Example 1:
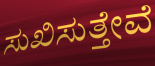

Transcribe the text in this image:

ಸುಖಿಸುತ್ತೇವೆ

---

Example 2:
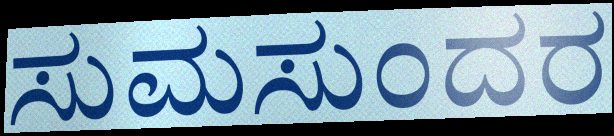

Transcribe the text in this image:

ಸುಮಸುಂದರ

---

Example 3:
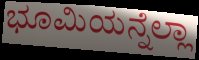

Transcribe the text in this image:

ಭೂಮಿಯನ್ನೆಲ್ಲಾ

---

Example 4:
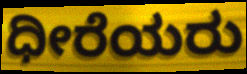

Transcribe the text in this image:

ಧೀರೆಯರು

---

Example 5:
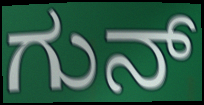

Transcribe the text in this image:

ಗುನ್